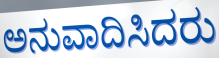
ಅನುವಾದಿಸಿದರು